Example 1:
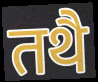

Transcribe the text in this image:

तथै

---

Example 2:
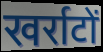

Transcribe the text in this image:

खर्राटों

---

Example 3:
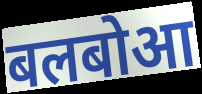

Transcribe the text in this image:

बलबोआ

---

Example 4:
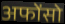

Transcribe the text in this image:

अफोंसो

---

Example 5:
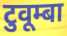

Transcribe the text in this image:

टुवूम्बा